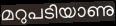
മറുപടിയാണു